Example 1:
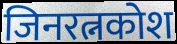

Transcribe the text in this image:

जिनरत्नकोश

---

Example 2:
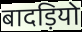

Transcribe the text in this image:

बादड़ियो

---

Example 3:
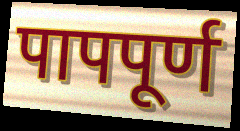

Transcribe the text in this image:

पापपूर्ण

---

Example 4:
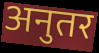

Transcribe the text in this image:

अनुतर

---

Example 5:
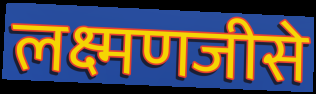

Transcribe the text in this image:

लक्ष्मणजीसे